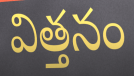
విత్తనం